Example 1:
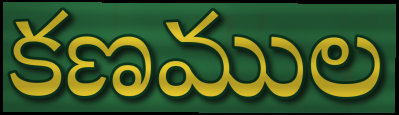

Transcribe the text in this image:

కణముల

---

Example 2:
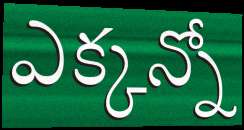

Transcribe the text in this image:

ఎక్కన్నో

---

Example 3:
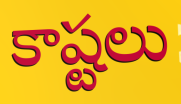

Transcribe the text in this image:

కాష్టలు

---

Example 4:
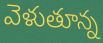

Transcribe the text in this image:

వెళుతూన్న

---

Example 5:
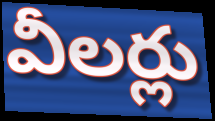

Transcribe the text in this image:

వీలర్లు